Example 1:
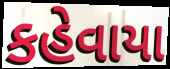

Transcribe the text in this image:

કહેવાયા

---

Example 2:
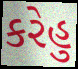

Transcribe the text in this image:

કરેહુ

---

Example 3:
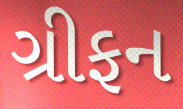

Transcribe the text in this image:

ગ્રીફન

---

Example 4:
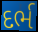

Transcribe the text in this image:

દર્ભ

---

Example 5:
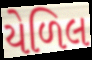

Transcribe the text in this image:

યેળિલ